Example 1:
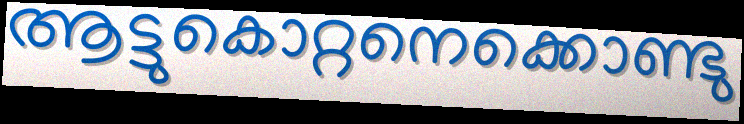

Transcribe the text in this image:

ആട്ടുകൊറ്റനെക്കൊണ്ടു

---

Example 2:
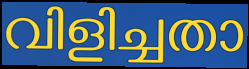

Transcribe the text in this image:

വിളിച്ചതാ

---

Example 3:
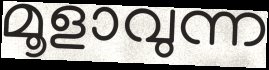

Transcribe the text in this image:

മൂളാവുന്ന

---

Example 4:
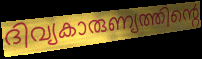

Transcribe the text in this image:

ദിവ്യകാരുണ്യത്തിന്റെ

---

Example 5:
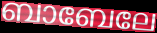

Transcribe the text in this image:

ബാബേലേ